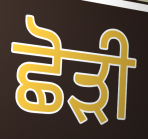
ਛੋੜੀ